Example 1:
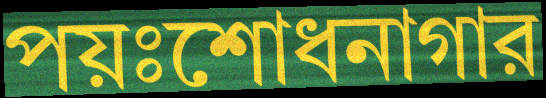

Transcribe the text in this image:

পয়ঃশোধনাগার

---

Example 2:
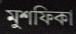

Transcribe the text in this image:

মুশফিকা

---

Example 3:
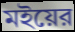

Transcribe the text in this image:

মইয়ের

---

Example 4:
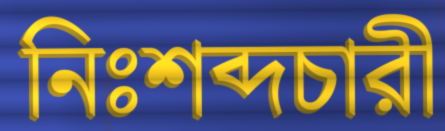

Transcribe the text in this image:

নিঃশব্দচারী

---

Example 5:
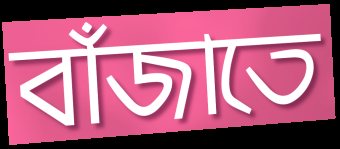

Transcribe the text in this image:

বাঁজাতে